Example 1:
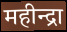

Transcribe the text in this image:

महीन्द्रा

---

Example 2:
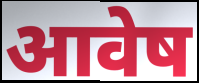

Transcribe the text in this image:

आवेष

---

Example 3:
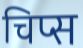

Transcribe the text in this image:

चिप्स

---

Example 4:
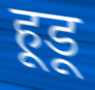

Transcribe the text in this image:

हूडू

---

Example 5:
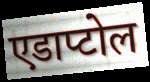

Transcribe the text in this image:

एडाप्टोल